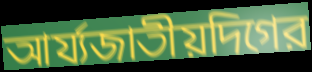
আর্য্যজাতীয়দিগের